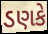
ડણકે